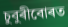
চুবুৰীবোৰত